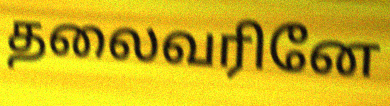
தலைவரினே